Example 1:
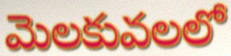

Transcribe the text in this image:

మెలకువలలో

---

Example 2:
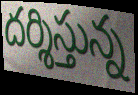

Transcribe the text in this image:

దర్శిస్తున్న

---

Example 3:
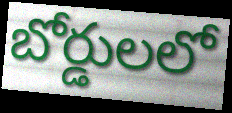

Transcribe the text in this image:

బోర్డులలో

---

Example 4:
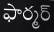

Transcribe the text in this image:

ఫార్మర్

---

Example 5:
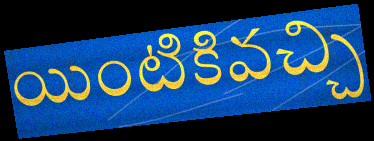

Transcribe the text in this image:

యింటికివచ్చి